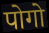
पोगो